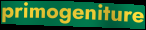
primogeniture